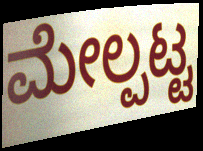
ಮೇಲ್ಪಟ್ಟ